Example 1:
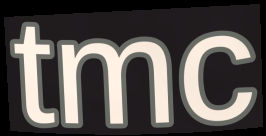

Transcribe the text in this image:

tmc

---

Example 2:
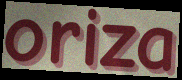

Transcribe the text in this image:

oriza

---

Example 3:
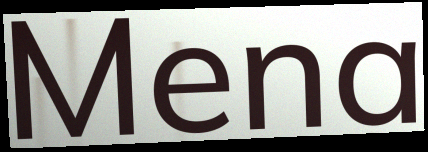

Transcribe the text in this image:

Mena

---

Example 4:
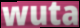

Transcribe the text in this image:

wuta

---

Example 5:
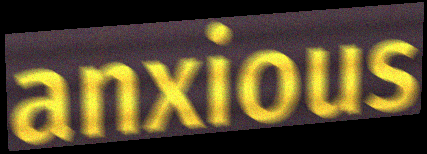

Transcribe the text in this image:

anxious